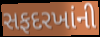
સફદરખાંની